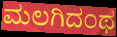
ಮಲಗಿದಂಥ